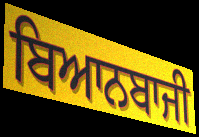
ਬਿਆਨਬਾਜੀ